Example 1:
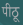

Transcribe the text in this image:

पीठू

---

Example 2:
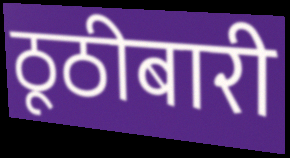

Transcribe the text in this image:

ठूठीबारी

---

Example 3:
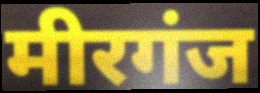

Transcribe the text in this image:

मीरगंज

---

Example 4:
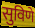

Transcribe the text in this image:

सुविणे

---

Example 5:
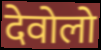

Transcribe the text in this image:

देवोलो